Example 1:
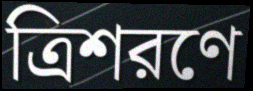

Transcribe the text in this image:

ত্রিশরণে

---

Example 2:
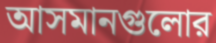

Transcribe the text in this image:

আসমানগুলোর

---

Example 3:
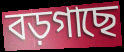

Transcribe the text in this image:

বড়গাছে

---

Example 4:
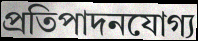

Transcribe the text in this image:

প্রতিপাদনযোগ্য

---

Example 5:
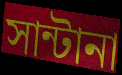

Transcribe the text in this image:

সান্টানা